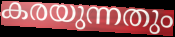
കരയുന്നതും